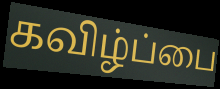
கவிழ்ப்பை